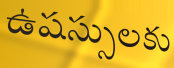
ఉషస్సులకు